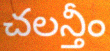
చలన్తీం